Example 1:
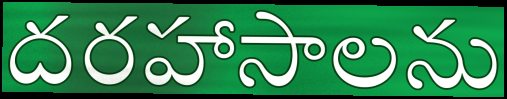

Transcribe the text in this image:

దరహాసాలను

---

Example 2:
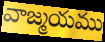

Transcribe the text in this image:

వాజ్మయము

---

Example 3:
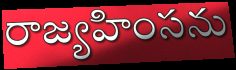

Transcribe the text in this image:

రాజ్యహింసను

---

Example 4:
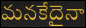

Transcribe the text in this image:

మనకేదైనా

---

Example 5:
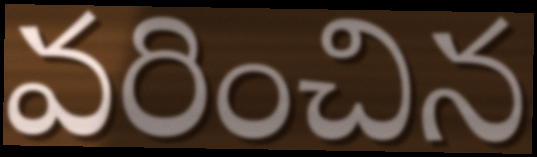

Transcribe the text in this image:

వరించిన